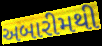
અબારીમથી